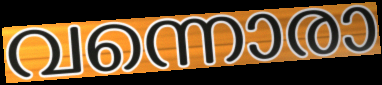
വന്നൊരാ